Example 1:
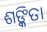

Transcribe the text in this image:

ଶଙ୍କିତା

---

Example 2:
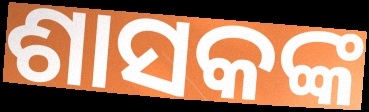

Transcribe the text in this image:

ଶାସକଙ୍କ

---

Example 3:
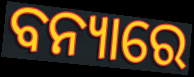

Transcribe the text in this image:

ବନ୍ୟାରେ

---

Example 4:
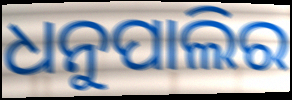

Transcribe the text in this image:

ଧନୁପାଲିର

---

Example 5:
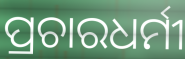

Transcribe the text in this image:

ପ୍ରଚାରଧର୍ମୀ